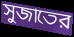
সুজাতের